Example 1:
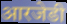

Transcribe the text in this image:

आरजेडी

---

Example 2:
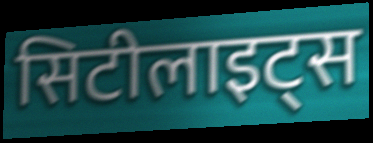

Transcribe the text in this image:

सिटीलाइट्स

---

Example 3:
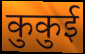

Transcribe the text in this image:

कुकुई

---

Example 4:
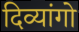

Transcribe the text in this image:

दिव्यांगो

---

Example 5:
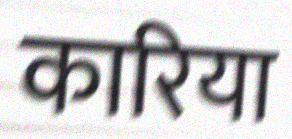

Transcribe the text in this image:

कारिया